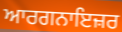
ਆਰਗਨਾਇਜ਼ਰ